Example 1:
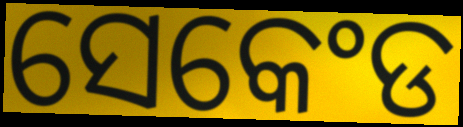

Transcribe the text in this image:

ସେକେଂଡ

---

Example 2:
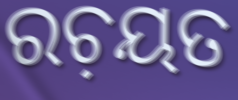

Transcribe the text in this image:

ରଚ଼ୟତ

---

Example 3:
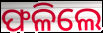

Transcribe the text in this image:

ଫଳିଲେ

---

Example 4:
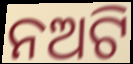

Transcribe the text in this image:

ନଅଟି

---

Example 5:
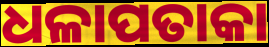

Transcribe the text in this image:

ଧଳାପତାକା